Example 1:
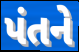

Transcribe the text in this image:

પંતને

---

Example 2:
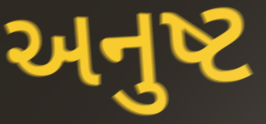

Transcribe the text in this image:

અનુષ્ટ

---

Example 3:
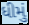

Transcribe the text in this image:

ધીમું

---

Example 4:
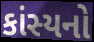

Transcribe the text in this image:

કાંસ્યનો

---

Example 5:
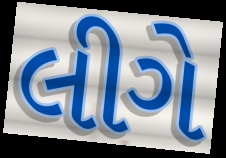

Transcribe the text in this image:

લીગે